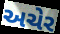
અચેર